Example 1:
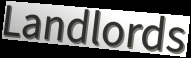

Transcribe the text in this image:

Landlords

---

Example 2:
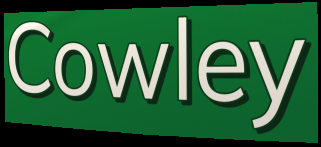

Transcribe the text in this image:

Cowley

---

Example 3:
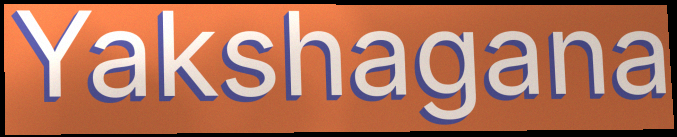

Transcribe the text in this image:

Yakshagana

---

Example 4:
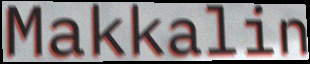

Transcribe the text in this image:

Makkalin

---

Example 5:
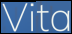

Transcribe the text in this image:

Vita